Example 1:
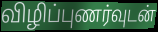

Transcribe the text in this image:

விழிப்புணர்வுடன்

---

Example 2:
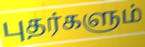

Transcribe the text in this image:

புதர்களும்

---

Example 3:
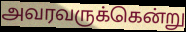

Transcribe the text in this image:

அவரவருக்கென்று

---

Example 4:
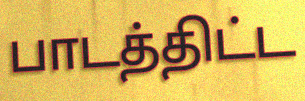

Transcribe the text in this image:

பாடத்திட்ட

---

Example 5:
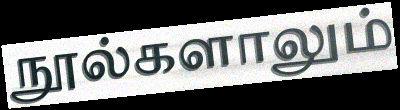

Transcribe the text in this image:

நூல்களாலும்